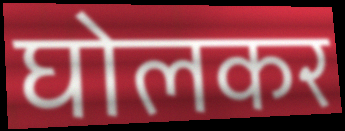
घोलकर